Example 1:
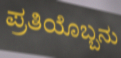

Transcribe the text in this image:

ಪ್ರತಿಯೊಬ್ಬನು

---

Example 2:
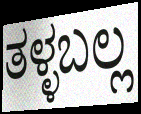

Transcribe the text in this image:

ತಳ್ಳಬಲ್ಲ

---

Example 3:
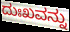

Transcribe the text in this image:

ದುಃಖವನ್ನು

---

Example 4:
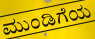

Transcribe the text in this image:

ಮುಂಡಿಗೆಯ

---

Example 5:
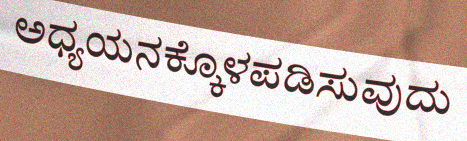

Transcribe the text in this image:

ಅಧ್ಯಯನಕ್ಕೊಳಪಡಿಸುವುದು